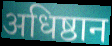
अधिष्ठान